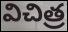
విచిత్ర